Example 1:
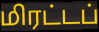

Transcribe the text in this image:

மிரட்டப்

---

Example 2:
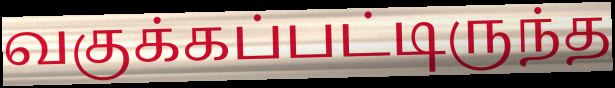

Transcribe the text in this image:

வகுக்கப்பட்டிருந்த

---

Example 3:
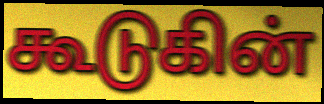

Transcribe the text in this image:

கூடுகின்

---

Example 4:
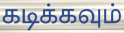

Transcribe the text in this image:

கடிக்கவும்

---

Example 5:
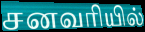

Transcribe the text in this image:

சனவரியில்